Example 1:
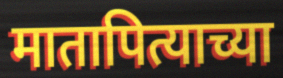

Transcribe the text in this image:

मातापित्याच्या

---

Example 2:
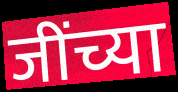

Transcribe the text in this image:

जींच्या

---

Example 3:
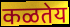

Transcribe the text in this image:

कळतेय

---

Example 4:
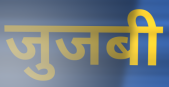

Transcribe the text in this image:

जुजबी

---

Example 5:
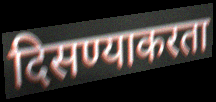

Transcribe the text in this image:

दिसण्याकरता